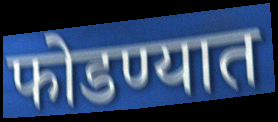
फोडण्यात